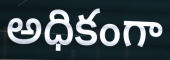
అధికంగా